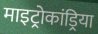
माइट्रोकांड्रिया